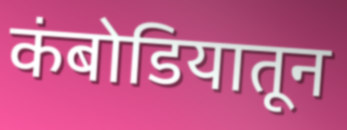
कंबोडियातून